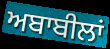
ਅਬਾਬੀਲਾਂ